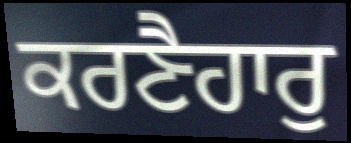
ਕਰਣੈਹਾਰੁ